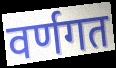
वर्णगत